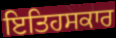
ਇਤਿਹਸਕਾਰ